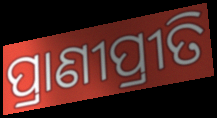
ପ୍ରାଣୀପ୍ରୀତି